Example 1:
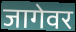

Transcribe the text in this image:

जागेवर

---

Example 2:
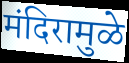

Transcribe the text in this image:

मंदिरामुळे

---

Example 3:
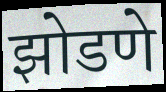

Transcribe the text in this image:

झोडणे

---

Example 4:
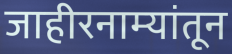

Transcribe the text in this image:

जाहीरनाम्यांतून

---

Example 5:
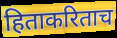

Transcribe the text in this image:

हिताकरिताच